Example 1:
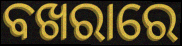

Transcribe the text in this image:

ବଖରାରେ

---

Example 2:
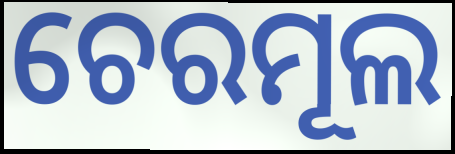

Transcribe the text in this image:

ଚେରମୂଲ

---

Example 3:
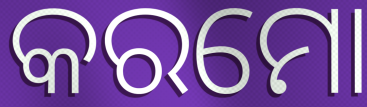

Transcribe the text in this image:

କରମୋ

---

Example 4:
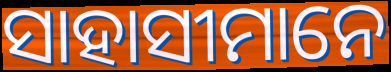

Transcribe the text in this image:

ସାହାସୀମାନେ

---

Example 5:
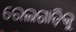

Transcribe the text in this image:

ରେଲଗାଡ଼ିକୁ